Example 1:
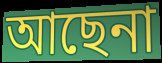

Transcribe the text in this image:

আছেনা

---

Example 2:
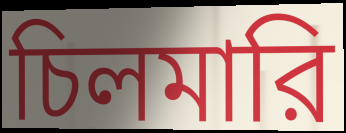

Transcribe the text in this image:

চিলমারি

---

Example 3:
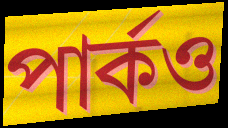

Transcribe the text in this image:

পার্কও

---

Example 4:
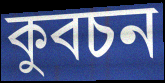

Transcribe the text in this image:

কুবচন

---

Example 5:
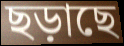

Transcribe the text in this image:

ছড়াছে